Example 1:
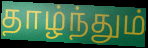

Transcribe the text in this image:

தாழ்ந்தும்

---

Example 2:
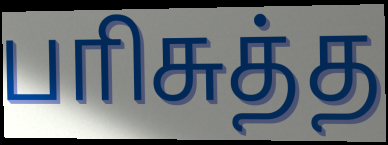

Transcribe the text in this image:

பரிசுத்த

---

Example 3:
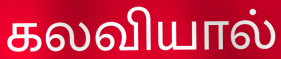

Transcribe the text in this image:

கலவியால்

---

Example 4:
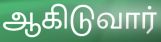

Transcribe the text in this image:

ஆகிடுவார்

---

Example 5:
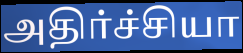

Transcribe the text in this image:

அதிர்ச்சியா